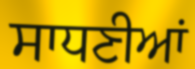
ਸਾਧਣੀਆਂ